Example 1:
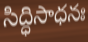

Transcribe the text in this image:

సిద్ధిసాధనః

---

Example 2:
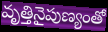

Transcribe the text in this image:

వృత్తినైపుణ్యంతో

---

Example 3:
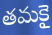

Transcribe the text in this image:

తమకై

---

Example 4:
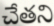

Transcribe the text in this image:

చేతని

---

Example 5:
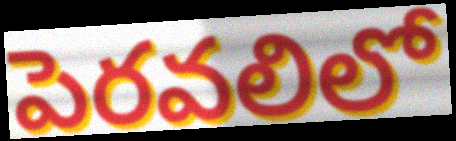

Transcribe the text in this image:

పెరవలిలో